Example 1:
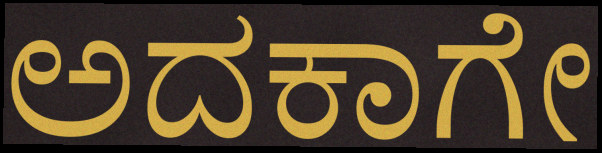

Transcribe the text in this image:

ಅದಕಾಗೇ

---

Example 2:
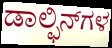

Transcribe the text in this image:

ಡಾಲ್ಫಿನ್‌ಗಳ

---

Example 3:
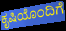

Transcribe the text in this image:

ಕೃಷಿಯೊಂದಿಗೆ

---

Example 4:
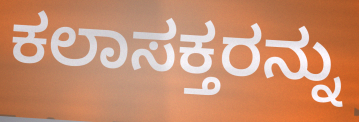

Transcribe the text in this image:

ಕಲಾಸಕ್ತರನ್ನು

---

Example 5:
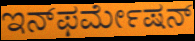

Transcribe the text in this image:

ಇನ್‌ಫರ್ಮೇಷನ್